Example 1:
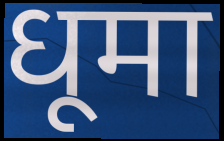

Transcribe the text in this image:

धूमा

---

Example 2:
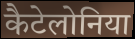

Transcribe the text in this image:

कैटेलोनिया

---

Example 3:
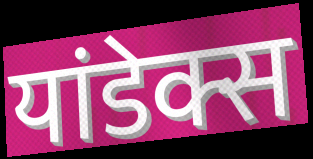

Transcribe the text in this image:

यांडेक्स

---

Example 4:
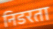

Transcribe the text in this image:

निडरता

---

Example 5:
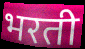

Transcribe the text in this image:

भरती